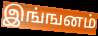
இங்ஙனம்